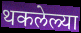
थकलेल्या